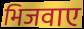
भिजवाए